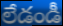
లేడండీ